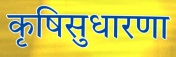
कृषिसुधारणा